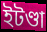
ইটণ্ডা